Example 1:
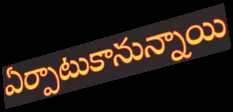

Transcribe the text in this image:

ఏర్పాటుకానున్నాయి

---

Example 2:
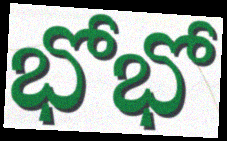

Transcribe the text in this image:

భోభో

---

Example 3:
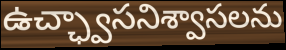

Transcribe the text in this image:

ఉచ్ఛ్వాసనిశ్వాసలను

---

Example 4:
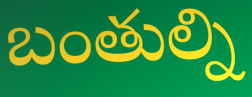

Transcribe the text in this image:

బంతుల్ని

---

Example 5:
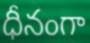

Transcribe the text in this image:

ధీనంగా